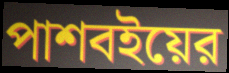
পাশবইয়ের